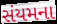
સંયમના